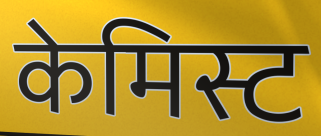
केमिस्ट